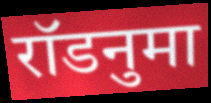
रॉडनुमा